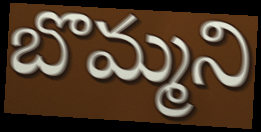
బొమ్మని